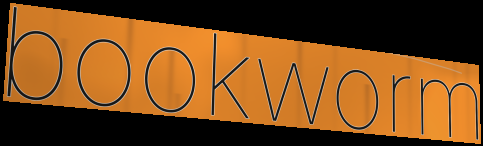
bookworm